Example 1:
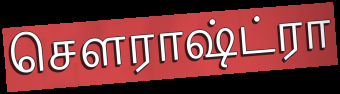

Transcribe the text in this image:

சௌராஷ்ட்ரா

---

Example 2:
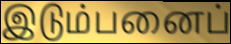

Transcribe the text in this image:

இடும்பனைப்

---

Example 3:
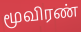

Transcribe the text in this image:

மூவிரண்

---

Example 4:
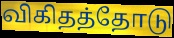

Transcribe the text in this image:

விகிதத்தோடு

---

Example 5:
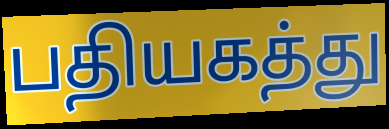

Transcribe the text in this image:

பதியகத்து